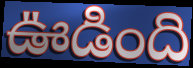
ఊడింది